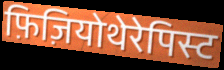
फ़िज़ियोथेरेपिस्ट